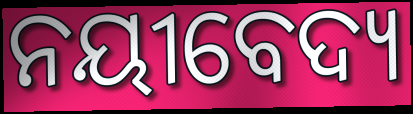
ନୟୀବେଦ୍ୟ